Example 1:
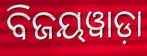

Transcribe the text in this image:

ବିଜୟୱାଡ଼ା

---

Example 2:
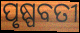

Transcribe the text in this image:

ପୃଷ୍ପବତୀ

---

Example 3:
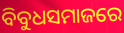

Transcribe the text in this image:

ବିବୁଧସମାଜରେ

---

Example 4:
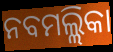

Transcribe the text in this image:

ନବମଲ୍ଲିକା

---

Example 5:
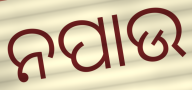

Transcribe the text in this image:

ନପାଉ